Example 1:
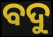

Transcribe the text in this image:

ବଦୁ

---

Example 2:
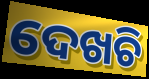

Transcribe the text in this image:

ଦେଖଚି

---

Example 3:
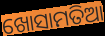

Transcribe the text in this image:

ଖୋସାମତିଆ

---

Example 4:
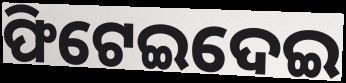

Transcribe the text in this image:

ଫିଟେଇଦେଇ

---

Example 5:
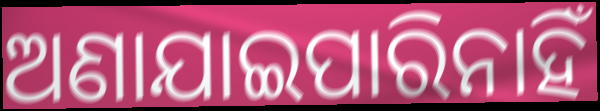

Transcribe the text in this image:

ଅଣାଯାଇପାରିନାହିଁ